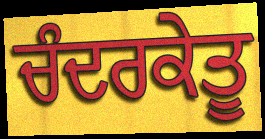
ਚੰਦਰਕੇਤੂ